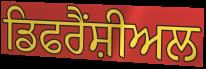
ਡਿਫਰੈਂਸ਼ੀਅਲ